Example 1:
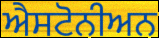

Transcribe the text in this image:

ਐਸਟੋਨੀਅਨ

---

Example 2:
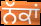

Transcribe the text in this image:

ਨੱਕਾਂ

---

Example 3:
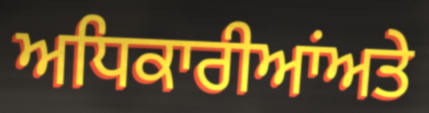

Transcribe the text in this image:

ਅਧਿਕਾਰੀਆਂਅਤੇ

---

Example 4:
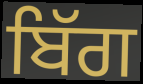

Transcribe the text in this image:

ਬਿੱਗ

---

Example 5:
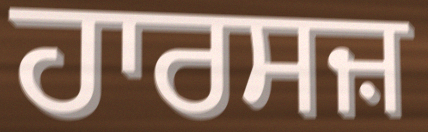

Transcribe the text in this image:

ਹਾਰਸਜ਼